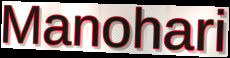
Manohari